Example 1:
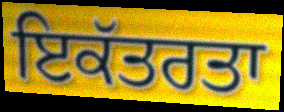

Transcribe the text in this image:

ਇਕੱਤਰਤਾ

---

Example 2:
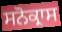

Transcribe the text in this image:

ਸਨੋਕ੍ਰਾਸ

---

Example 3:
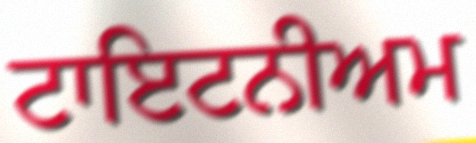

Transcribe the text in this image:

ਟਾਇਟਨੀਅਮ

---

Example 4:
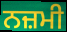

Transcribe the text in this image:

ਨਜ਼ਮੀ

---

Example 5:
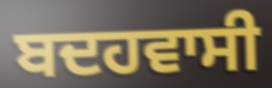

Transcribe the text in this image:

ਬਦਹਵਾਸੀ